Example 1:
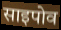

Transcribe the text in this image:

साइपोव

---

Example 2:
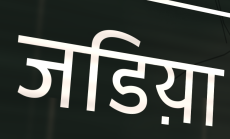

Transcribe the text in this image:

जडिय़ा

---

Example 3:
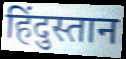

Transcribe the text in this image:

हिंदुस्तान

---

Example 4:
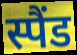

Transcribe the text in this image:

स्पैंड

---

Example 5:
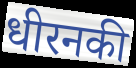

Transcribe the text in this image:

धीरनकी